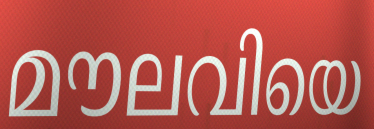
മൗലവിയെ